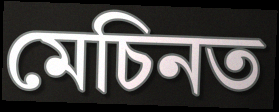
মেচিনত